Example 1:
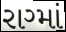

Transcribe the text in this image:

રાગ્માં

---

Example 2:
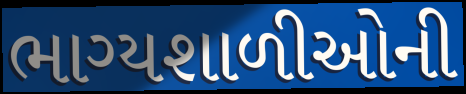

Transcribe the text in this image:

ભાગ્યશાળીઓની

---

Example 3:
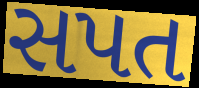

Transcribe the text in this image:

સપત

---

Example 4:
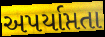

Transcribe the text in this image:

અપર્યાપ્તતા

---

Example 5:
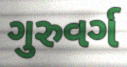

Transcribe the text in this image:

ગુરુવર્ગ